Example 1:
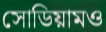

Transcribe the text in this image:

সোডিয়ামও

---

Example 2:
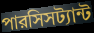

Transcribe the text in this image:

পারসিসট্যান্ট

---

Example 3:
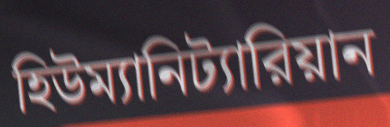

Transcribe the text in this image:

হিউম্যানিট্যারিয়ান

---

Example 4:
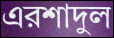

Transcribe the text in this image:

এরশাদুল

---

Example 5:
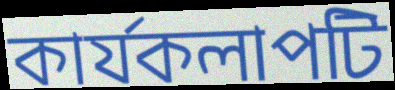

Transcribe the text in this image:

কার্যকলাপটি